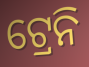
ଟ୍ରେନି